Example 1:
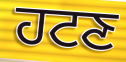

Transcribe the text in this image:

ਹਟਣ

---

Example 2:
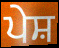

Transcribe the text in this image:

ਪੇਸ਼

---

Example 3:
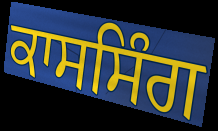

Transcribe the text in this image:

ਕਾਸਸਿੰਗ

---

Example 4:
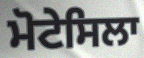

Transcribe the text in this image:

ਮੋਟੇਸਿਲਾ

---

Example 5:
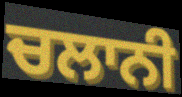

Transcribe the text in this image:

ਚਲਾਨੀ